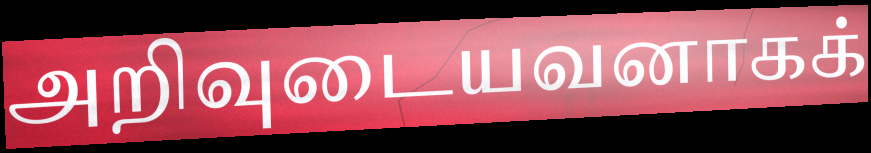
அறிவுடையவனாகக்